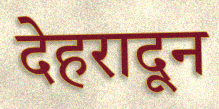
देहरादून